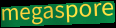
megaspore